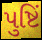
પુષ્ટિં